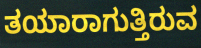
ತಯಾರಾಗುತ್ತಿರುವ